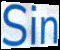
Sin